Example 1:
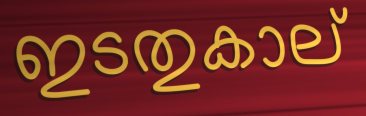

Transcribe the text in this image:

ഇടതുകാല്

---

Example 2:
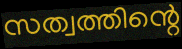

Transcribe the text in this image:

സത്വത്തിന്റെ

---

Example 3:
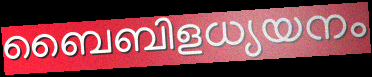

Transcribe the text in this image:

ബൈബിളധ്യയനം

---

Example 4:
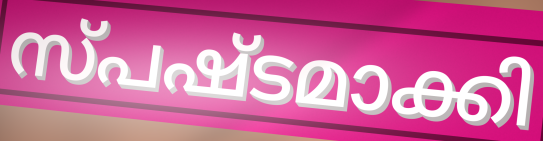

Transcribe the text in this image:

സ്പഷ്ടമാക്കി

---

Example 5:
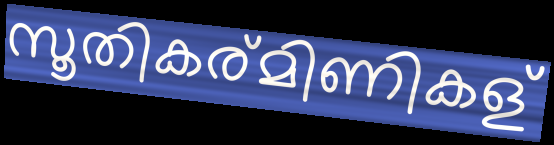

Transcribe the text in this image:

സൂതികര്മിണികള്